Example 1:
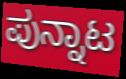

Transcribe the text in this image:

ಪುನ್ನಾಟ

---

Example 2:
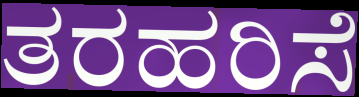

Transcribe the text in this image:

ತರಹರಿಸೆ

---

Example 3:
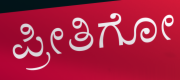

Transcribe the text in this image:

ಪ್ರೀತಿಗೋ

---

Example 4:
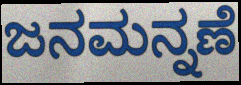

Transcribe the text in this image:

ಜನಮನ್ನಣೆ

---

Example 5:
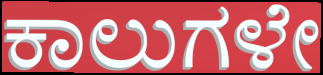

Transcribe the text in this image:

ಕಾಲುಗಳೇ